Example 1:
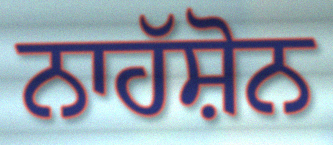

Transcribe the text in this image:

ਨਾਹੱਸ਼ੋਨ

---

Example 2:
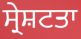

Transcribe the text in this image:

ਸ੍ਰੇਸ਼ਟਤਾ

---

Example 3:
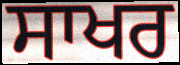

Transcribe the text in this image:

ਸਾਖਰ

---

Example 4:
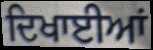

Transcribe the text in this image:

ਦਿਖਾਈਆਂ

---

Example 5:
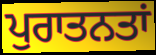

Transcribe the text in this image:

ਪੁਰਾਤਨਤਾਂ